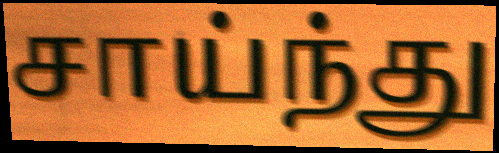
சாய்ந்து